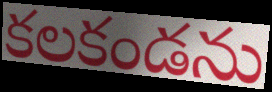
కలకండను